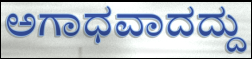
ಅಗಾಧವಾದದ್ದು